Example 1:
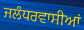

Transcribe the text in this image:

ਜਲੰਧਰਵਾਸੀਆਂ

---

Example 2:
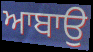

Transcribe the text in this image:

ਆਬਾਉ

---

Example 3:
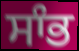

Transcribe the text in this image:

ਸਾੰਭ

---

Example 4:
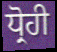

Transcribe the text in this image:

ਧ੍ਰੋਹੀ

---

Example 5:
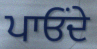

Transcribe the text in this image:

ਪਾਓਂਦੇ